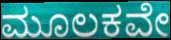
ಮೂಲಕವೇ